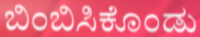
ಬಿಂಬಿಸಿಕೊಂಡು